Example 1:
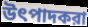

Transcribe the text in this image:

উৎপাদকরা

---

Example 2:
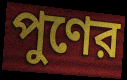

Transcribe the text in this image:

পুণের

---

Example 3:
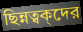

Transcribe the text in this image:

ছিন্নত্বক্দের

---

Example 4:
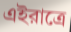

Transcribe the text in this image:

এইরাত্রে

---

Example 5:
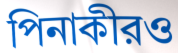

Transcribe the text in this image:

পিনাকীরও